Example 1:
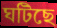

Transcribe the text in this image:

ঘটিছে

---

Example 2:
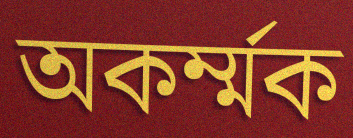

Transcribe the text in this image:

অকৰ্ম্মক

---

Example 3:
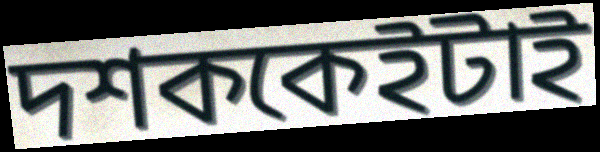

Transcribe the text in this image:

দশককেইটাই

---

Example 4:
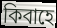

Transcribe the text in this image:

কিবাহে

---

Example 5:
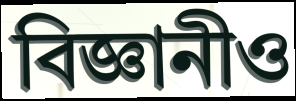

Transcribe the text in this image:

বিজ্ঞানীও